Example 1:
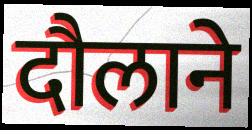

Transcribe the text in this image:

दौलाने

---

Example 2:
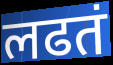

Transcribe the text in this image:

लढतं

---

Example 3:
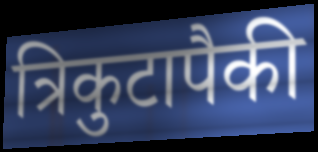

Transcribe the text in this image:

त्रिकुटापैकी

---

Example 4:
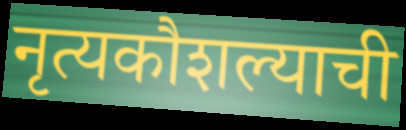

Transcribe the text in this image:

नृत्यकौशल्याची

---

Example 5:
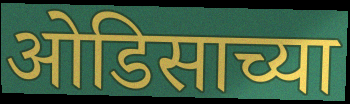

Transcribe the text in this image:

ओडिसाच्या